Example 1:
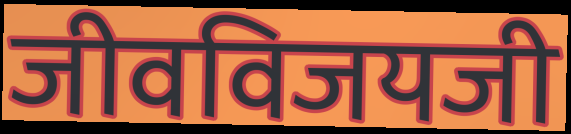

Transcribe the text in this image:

जीवविजयजी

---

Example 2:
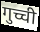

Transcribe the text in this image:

गुच्ची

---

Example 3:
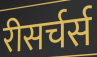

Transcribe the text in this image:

रीसर्चर्स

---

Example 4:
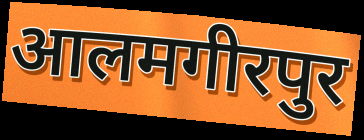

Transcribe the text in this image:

आलमगीरपुर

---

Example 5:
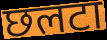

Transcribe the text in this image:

छलटा